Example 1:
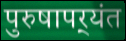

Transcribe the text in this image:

पुरुषापर्यंत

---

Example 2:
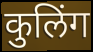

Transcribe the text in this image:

कुलिंग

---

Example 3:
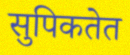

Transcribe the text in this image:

सुपिकतेत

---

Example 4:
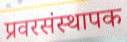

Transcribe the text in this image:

प्रवरसंस्थापक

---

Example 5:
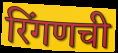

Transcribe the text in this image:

रिंगणची